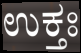
ಉಕ್ತಃ